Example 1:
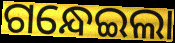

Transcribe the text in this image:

ଗନ୍ଧେଇଲା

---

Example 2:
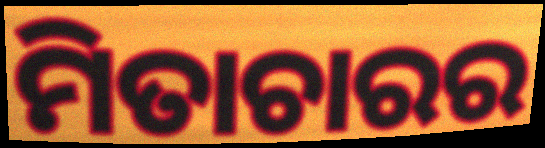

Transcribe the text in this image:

ମିତାଚାରର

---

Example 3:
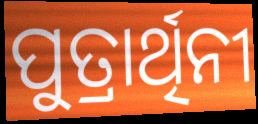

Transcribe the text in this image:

ପୁତ୍ରାର୍ଥିନୀ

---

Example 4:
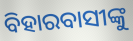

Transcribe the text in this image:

ବିହାରବାସୀଙ୍କୁ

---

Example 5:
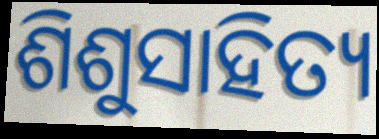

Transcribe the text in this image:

ଶିଶୁସାହିତ୍ୟ